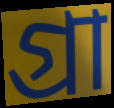
গ্ৰা